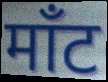
माँट